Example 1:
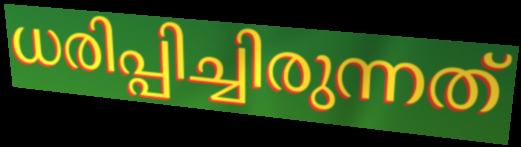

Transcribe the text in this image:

ധരിപ്പിച്ചിരുന്നത്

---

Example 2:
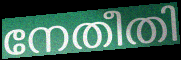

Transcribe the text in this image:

നേതീതി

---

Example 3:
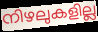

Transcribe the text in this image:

നിഴലുകളില്ല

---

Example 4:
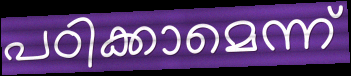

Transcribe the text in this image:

പഠിക്കാമെന്ന്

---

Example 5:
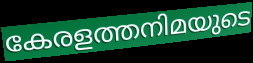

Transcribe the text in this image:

കേരളത്തനിമയുടെ